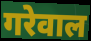
गरेवाल